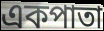
একপাতা